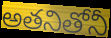
అతనితోనీ